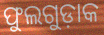
ଫୁଲଗୁଡ଼ାକ